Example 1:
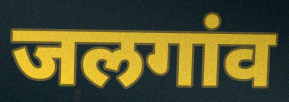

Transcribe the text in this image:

जलगांव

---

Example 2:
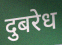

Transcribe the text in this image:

दुबरेध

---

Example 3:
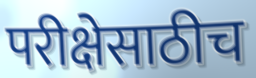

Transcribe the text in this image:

परीक्षेसाठीच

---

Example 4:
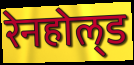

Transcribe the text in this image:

रेनहोल्ड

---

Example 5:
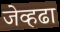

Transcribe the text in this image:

जेव्हढा